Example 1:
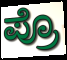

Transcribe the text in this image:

ಪ್ರೊ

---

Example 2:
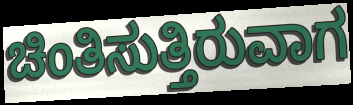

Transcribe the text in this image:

ಚಿಂತಿಸುತ್ತಿರುವಾಗ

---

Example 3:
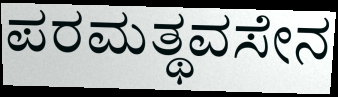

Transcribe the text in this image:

ಪರಮತ್ಥವಸೇನ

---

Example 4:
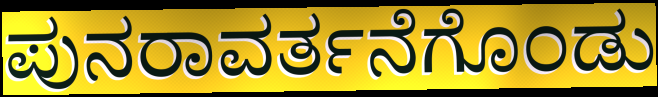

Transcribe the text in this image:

ಪುನರಾವರ್ತನೆಗೊಂಡು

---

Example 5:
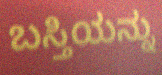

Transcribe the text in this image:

ಬಸ್ತಿಯನ್ನು